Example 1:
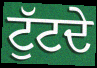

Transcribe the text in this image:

ਟੁੱਟਦੇ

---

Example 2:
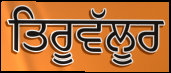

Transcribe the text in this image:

ਤਿਰੂਵੱਲੂਰ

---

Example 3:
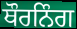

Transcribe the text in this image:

ਥੌਰਨਿੰਗ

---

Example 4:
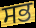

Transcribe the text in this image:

ਸਭ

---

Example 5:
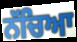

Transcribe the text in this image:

ਨੱਚਿਆ